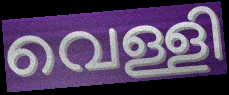
വെള്ളി